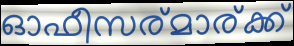
ഓഫീസര്മാര്ക്ക്